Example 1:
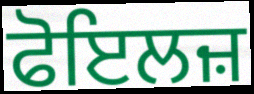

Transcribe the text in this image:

ਫੋਇਲਜ਼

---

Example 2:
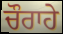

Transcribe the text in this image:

ਚੌਰਾਹੇ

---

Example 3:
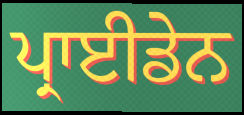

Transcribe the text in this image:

ਪ੍ਰਾਈਡੇਨ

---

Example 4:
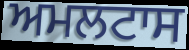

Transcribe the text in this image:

ਅਮਲਟਾਸ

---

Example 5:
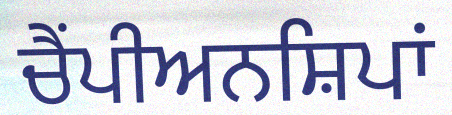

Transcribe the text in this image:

ਚੈਂਪੀਅਨਸ਼ਿਪਾਂ